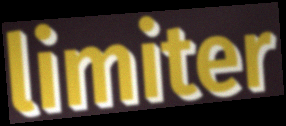
limiter